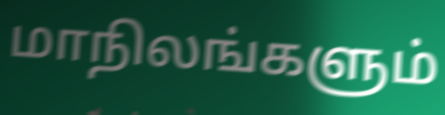
மாநிலங்களும்